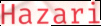
Hazari